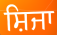
ਸ਼ਿਜਾ